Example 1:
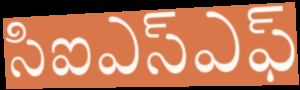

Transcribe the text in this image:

సిఐఎస్ఎఫ్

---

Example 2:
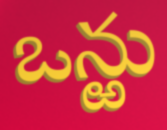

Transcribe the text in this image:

ఒన్ఱు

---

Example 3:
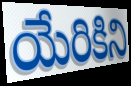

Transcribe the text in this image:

యేరికిని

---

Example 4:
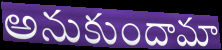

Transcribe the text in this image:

అనుకుందామా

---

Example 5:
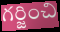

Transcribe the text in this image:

గర్జించి